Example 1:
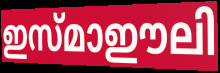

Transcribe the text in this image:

ഇസ്മാഈലി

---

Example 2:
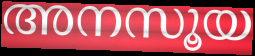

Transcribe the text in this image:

അനസൂയ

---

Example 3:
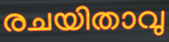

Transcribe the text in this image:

രചയിതാവു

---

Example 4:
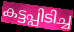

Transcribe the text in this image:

കട്ടപ്പിടിച്ച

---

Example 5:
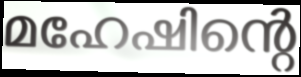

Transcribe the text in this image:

മഹേഷിന്റെ